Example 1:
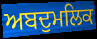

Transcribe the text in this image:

ਅਬਦੁਮਲਿਕ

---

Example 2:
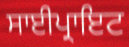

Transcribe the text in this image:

ਸਾਈਪ੍ਰਾਇਟ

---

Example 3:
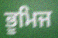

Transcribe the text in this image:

ਭੂਮਿਜ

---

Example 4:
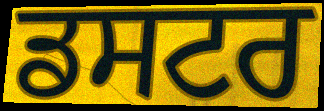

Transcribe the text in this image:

ਡਸਟਰ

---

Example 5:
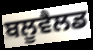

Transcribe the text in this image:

ਬਲੂਵੈਲਡ